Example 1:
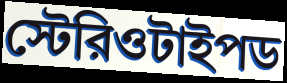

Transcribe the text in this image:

স্টেরিওটাইপড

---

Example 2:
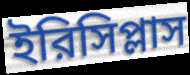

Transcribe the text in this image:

ইরিসিপ্লাস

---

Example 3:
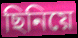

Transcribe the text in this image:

ছিনিয়ে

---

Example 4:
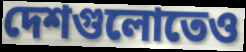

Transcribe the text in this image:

দেশগুলোতেও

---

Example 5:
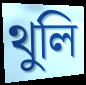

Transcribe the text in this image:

থুলি